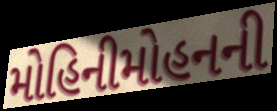
મોહિનીમોહનની